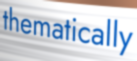
thematically